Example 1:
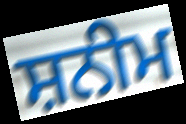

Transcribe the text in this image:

ਸ਼ਨੀਮ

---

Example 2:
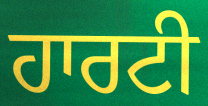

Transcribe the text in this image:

ਹਾਰਟੀ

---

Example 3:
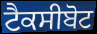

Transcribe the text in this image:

ਟੈਕਸੀਬੋਟ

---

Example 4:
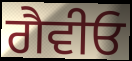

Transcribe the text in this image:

ਗੈਵੀਓ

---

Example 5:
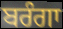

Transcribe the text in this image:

ਬਰੰਗਾ